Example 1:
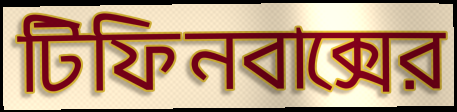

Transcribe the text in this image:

টিফিনবাক্সের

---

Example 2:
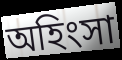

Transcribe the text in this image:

অহিংসা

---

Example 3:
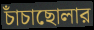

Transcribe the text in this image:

চাঁচাছোলার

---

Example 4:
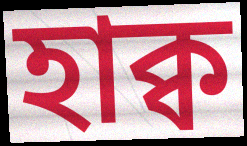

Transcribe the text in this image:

হাক্ব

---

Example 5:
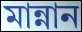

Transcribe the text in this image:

মান্নান